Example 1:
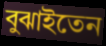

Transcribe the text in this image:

বুঝাইতেন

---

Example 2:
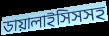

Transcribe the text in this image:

ডায়ালাইসিসসহ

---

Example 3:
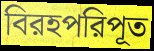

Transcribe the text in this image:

বিরহপরিপূত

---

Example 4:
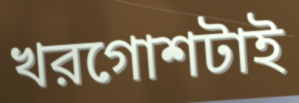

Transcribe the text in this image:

খরগোশটাই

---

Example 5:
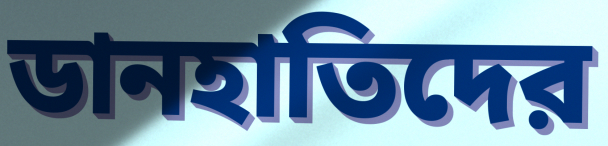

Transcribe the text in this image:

ডানহাতিদের